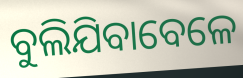
ବୁଲିଯିବାବେଳେ